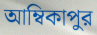
আম্বিকাপুর